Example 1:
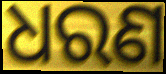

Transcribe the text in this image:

ଧରଣ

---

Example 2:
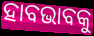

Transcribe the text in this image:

ହାବଭାବକୁ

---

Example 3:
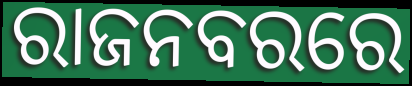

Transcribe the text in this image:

ରାଜନବରରେ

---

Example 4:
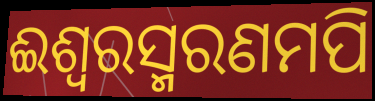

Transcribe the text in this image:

ଈଶ୍ଵରସ୍ମରଣମପି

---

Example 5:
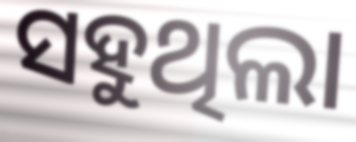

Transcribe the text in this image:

ସହୁଥିଲା